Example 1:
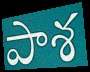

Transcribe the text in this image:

పాశ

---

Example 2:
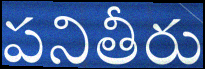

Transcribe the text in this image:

పనితీరు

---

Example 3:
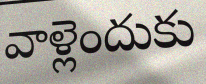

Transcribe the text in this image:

వాళ్లెందుకు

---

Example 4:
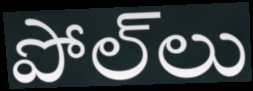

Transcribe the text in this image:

పోల్‌లు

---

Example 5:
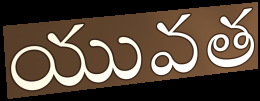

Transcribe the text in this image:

యువత